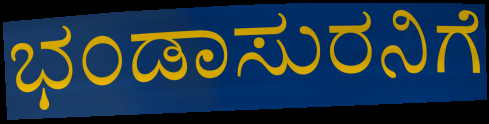
ಭಂಡಾಸುರನಿಗೆ